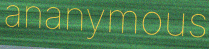
ananymous